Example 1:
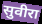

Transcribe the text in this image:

सुवीरा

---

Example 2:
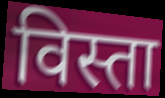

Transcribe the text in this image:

विस्ता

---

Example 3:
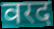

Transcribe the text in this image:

वरद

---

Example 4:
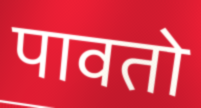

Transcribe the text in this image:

पावतो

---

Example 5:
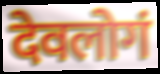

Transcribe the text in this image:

देवलोगं